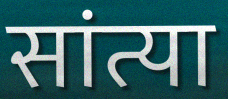
सांत्या